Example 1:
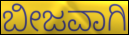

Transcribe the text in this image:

ಬೀಜವಾಗಿ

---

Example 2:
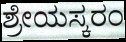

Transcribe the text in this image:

ಶ್ರೇಯಸ್ಕರಂ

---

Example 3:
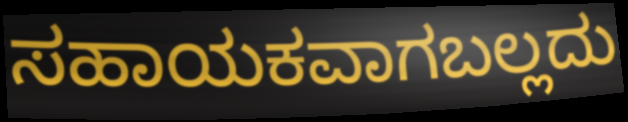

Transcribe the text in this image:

ಸಹಾಯಕವಾಗಬಲ್ಲದು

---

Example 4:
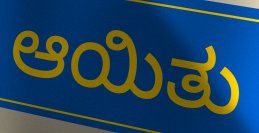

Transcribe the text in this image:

ಆಯಿತು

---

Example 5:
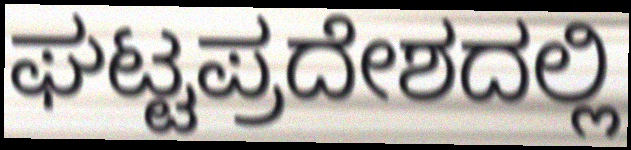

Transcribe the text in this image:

ಘಟ್ಟಪ್ರದೇಶದಲ್ಲಿ